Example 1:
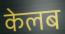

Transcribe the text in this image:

केलब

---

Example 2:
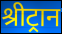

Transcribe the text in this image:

श्रीट्रान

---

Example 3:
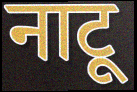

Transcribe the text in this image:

नाटू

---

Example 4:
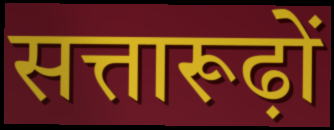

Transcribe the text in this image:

सत्तारूढ़ों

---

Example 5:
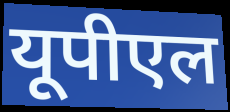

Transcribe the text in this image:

यूपीएल